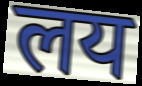
लय